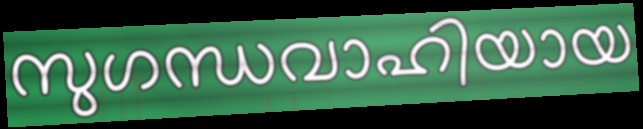
സുഗന്ധവാഹിയായ